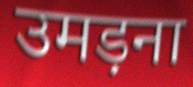
उमड़ना